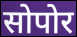
सोपोर